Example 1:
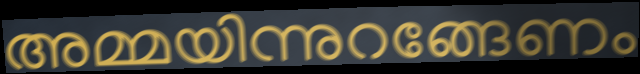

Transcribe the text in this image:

അമ്മയിന്നുറങ്ങേണം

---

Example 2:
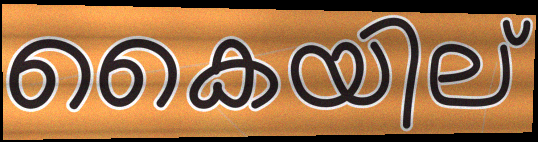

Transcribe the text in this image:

കൈയില്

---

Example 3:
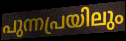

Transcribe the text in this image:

പുന്നപ്രയിലും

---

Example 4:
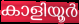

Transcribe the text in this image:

കാളിയൂർ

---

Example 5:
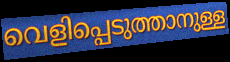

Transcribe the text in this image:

വെളിപ്പെടുത്താനുള്ള